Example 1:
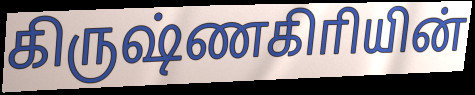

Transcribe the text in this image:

கிருஷ்ணகிரியின்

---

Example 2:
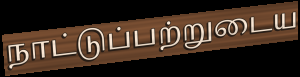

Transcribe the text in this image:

நாட்டுப்பற்றுடைய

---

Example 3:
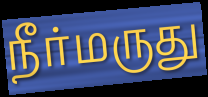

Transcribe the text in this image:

நீர்மருது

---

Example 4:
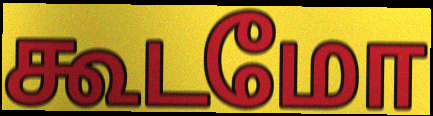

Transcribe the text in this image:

கூடமோ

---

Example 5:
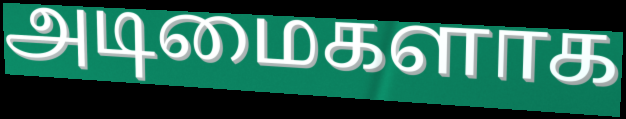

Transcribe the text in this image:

அடிமைகளாக